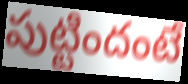
పుట్టిందంటే